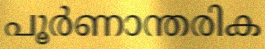
പൂർണാന്തരിക